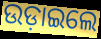
ଉଡ଼ାଇଲେ